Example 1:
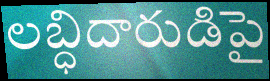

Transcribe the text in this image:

లబ్ధిదారుడిపై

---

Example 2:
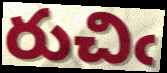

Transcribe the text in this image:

రుచిఁ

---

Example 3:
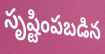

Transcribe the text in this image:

సృష్టింపబడిన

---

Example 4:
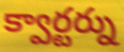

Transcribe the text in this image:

క్వార్టర్ను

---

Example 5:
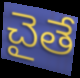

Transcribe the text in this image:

చైతే